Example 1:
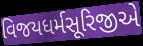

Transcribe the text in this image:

વિજયધર્મસૂરિજીએ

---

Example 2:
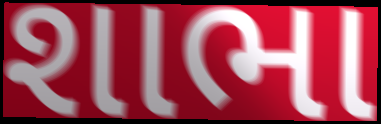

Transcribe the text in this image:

શાભા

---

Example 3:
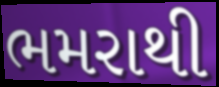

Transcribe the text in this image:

ભમરાથી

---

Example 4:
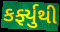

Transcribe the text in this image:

કર્ફ્યુથી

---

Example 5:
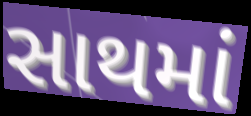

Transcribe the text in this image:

સાથમાં